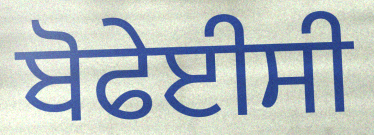
ਬੋਫੇਈਸੀ